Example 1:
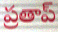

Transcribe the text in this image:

ప్రతాప్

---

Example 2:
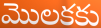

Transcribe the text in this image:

మొలకకు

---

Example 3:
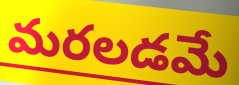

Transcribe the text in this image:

మరలడమే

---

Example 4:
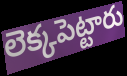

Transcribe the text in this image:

లెక్కపెట్టారు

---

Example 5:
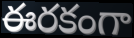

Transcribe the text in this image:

ఈరకంగా